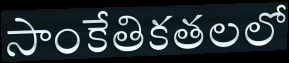
సాంకేతికతలలో